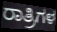
ರಾತ್ರಿಗಳ